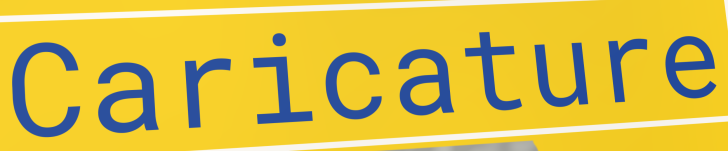
Caricature